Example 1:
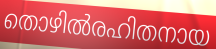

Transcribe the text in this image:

തൊഴിൽരഹിതനായ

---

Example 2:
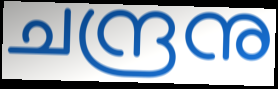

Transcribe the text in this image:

ചന്ദ്രനു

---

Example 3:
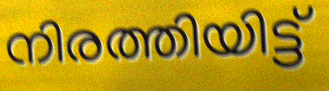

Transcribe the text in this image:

നിരത്തിയിട്ട്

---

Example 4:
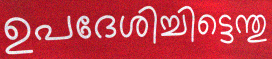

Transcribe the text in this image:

ഉപദേശിച്ചിട്ടെന്തു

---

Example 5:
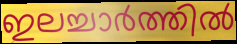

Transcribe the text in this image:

ഇലച്ചാർത്തിൽ